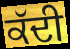
ਕੱਦੀ